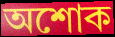
অশোক